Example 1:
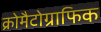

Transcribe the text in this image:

क्रोमैटोग्राफिक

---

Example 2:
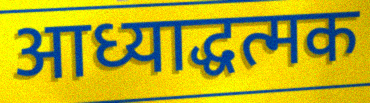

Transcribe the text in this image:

आध्याद्धत्मक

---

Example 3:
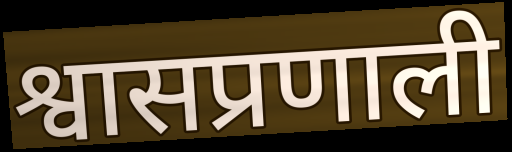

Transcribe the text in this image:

श्वासप्रणाली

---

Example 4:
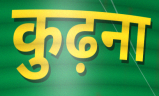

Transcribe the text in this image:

कुढ़ना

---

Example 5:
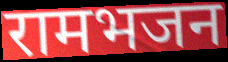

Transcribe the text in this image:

रामभजन